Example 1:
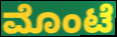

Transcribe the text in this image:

ಮೊಂಟೆ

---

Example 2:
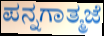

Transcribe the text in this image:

ಪನ್ನಗಾತ್ಮಜೆ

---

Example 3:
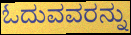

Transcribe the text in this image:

ಓದುವವರನ್ನು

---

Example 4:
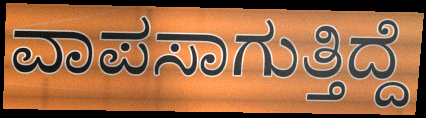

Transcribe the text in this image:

ವಾಪಸಾಗುತ್ತಿದ್ದೆ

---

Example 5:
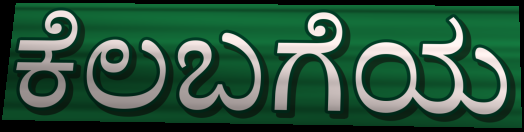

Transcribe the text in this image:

ಕೆಲಬಗೆಯ